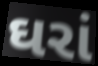
ઘરાં